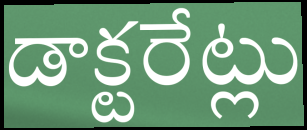
డాక్టరేట్లు